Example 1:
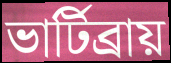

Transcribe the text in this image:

ভার্টিব্রায়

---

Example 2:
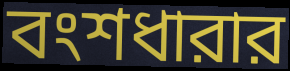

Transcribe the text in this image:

বংশধারার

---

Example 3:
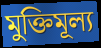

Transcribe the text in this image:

মুক্তিমূল্য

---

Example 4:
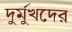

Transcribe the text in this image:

দুর্মুখদের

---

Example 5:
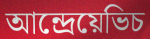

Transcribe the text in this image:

আন্দ্রেয়েভিচ